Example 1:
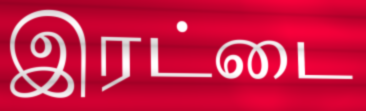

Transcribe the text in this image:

இரட்டை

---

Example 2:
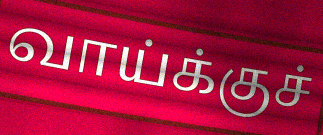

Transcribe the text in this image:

வாய்க்குச்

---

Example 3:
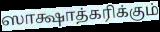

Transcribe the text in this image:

ஸாக்ஷாத்கரிக்கும்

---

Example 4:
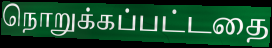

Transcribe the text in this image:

நொறுக்கப்பட்டதை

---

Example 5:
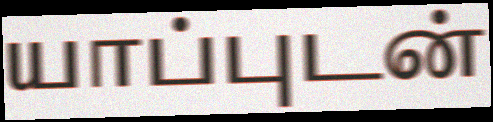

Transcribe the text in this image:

யாப்புடன்